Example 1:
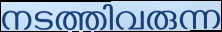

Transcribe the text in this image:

നടത്തിവരുന്ന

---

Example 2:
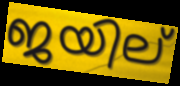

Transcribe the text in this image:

ജയില്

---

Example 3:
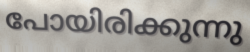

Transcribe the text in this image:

പോയിരിക്കുന്നു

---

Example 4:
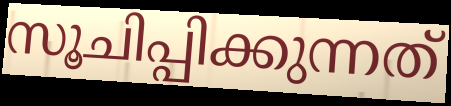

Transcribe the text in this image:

സൂചിപ്പിക്കുന്നത്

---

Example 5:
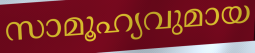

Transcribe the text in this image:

സാമൂഹ്യവുമായ